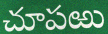
చూపఱు